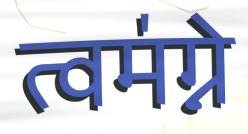
त्वम॑ग्ने